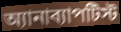
অ্যানাব্যাপটিস্ট